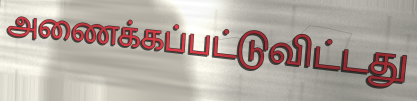
அணைக்கப்பட்டுவிட்டது